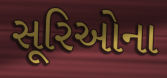
સૂરિઓના